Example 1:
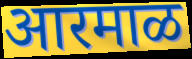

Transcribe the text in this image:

आरमाळ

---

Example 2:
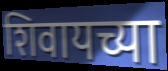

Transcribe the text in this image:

शिवायच्या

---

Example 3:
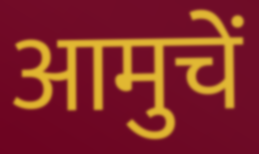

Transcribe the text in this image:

आमुचें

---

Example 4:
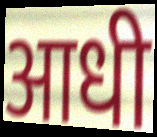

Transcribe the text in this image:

आधी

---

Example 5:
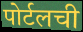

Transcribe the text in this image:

पोर्टलची